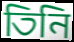
তিনি